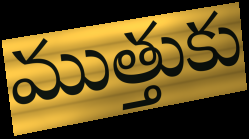
ముత్తుకు